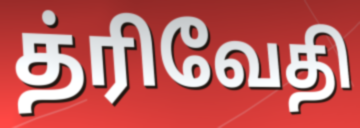
த்ரிவேதி